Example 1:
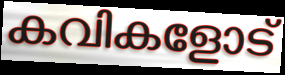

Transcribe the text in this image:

കവികളോട്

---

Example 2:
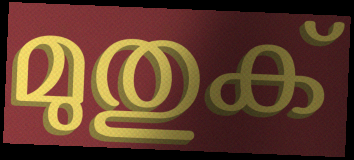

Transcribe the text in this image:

മുതുക്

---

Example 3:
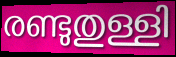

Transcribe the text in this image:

രണ്ടുതുള്ളി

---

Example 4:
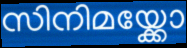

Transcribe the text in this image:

സിനിമയ്ക്കോ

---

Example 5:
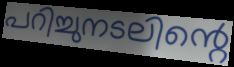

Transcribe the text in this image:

പറിച്ചുനടലിന്റെ